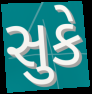
સુકે